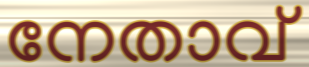
നേതാവ്